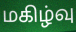
மகிழ்வு